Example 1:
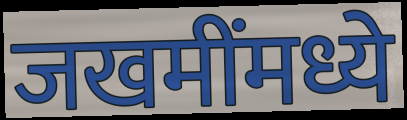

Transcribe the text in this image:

जखमींमध्ये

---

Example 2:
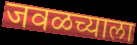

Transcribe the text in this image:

जवळच्याला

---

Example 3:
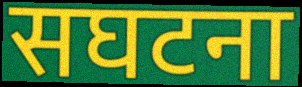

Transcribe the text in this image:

सघटना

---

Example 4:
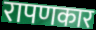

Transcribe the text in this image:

रापणकार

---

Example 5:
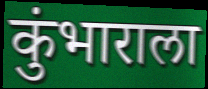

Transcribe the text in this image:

कुंभाराला